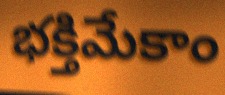
భక్తిమేకాం